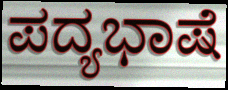
ಪದ್ಯಭಾಷೆ